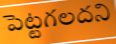
పెట్టగలదని